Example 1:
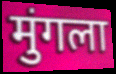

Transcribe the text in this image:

मुंगला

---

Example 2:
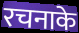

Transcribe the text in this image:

रचनाके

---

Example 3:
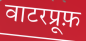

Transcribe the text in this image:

वाटरप्रूफ़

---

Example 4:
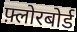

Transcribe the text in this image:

फ़्लोरबोर्ड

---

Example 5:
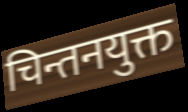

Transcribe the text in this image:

चिन्तनयुक्त